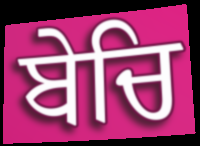
ਬੇਚਿ